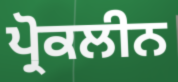
ਪ੍ਰੋਕਲੀਨ